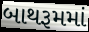
બાથરૂમમાં